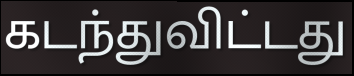
கடந்துவிட்டது